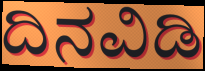
ದಿನವಿಡಿ